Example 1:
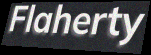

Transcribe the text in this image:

Flaherty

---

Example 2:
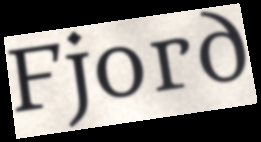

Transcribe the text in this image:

Fjord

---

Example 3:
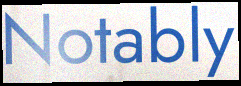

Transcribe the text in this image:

Notably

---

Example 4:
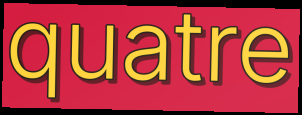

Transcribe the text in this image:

quatre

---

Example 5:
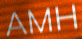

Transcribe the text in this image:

AMH